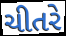
ચીતરે